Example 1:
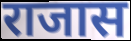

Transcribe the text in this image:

राजास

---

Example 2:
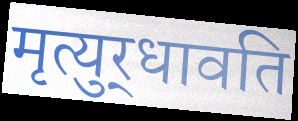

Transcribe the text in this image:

मृत्युर्धावति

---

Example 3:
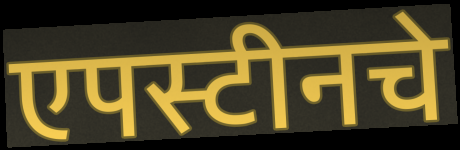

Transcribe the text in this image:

एपस्टीनचे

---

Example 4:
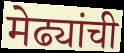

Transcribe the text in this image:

मेढ्यांची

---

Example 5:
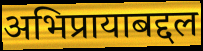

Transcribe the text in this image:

अभिप्रायाबद्दल